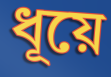
ধূয়ে